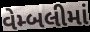
વેમ્બલીમાં